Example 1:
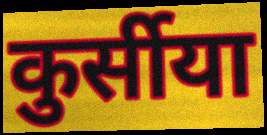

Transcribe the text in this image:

कुर्सीया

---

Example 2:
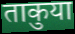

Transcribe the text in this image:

ताकुया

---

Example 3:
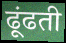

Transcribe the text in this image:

ढूंढती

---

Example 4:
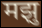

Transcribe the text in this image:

मझु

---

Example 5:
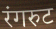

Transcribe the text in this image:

रंगरुट